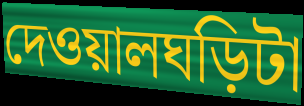
দেওয়ালঘড়িটা